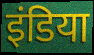
इंडिया